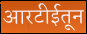
आरटीईतून